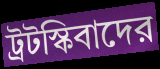
ট্রটস্কিবাদের